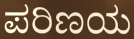
ಪರಿಣಯ